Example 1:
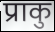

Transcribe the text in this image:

प्राकु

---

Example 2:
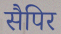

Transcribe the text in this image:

सैपिर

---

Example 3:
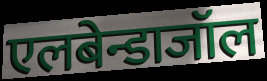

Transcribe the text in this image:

एलबेन्डाजॉल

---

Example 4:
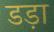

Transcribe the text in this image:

डड़ा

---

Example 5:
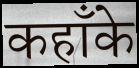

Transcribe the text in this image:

कहाँके